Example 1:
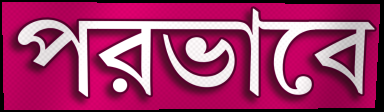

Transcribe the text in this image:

পরভাবে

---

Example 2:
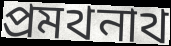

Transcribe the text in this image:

প্রমথনাথ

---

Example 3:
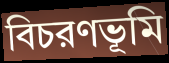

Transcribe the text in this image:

বিচরণভূমি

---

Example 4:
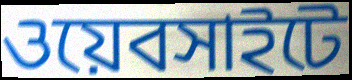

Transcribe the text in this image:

ওয়েবসাইটে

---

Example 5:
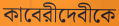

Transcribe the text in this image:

কাবেরীদেবীকে